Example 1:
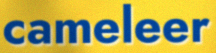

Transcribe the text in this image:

cameleer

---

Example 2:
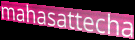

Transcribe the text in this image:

mahasattecha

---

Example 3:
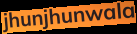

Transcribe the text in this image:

jhunjhunwala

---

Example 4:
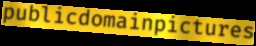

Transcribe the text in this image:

publicdomainpictures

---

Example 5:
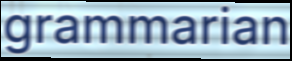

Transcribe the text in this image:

grammarian